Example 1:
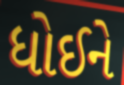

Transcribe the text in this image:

ધોઈને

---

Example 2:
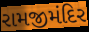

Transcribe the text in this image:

રામજીમંદિર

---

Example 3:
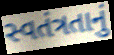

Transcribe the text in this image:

સ્વતંત્રતાનું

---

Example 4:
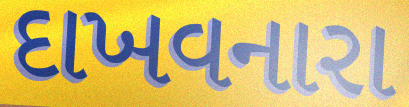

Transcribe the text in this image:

દાખવનારા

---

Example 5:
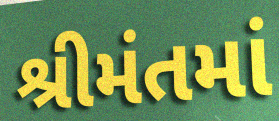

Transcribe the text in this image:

શ્રીમંતમાં